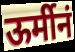
ऊर्मीनं